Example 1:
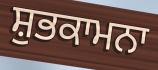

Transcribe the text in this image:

ਸ਼ੁਭਕਾਮਨਾ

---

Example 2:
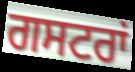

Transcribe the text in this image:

ਗਸਟਰਾਂ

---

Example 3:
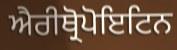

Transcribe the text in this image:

ਐਰੀਥ੍ਰੋਪੋਇਟਿਨ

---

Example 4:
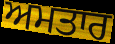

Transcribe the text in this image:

ਅਮਤਾਰ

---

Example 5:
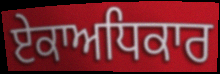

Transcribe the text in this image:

ਏਕਾਅਧਿਕਾਰ